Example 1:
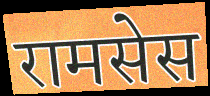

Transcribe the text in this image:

रामसेस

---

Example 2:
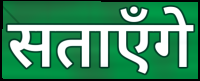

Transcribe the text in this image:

सताएँगे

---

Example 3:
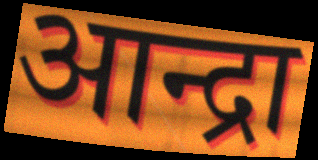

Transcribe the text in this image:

आन्द्रा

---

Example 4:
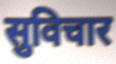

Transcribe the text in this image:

सुविचार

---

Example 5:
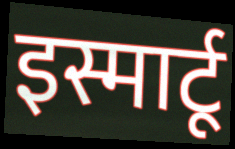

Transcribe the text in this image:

इस्मार्टू